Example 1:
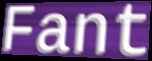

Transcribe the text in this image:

Fant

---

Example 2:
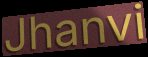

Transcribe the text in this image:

Jhanvi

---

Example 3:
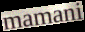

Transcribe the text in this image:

mamani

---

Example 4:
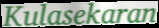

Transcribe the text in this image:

Kulasekaran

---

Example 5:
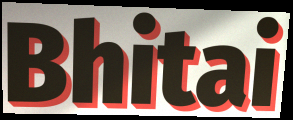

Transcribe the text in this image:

Bhitai